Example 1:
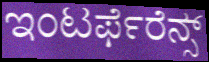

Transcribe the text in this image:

ಇಂಟರ್ಫೆರೆನ್ಸ್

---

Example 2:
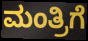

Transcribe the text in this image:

ಮಂತ್ರಿಗೆ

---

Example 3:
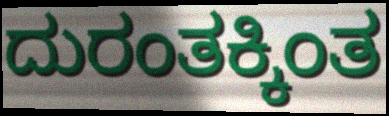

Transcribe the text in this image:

ದುರಂತಕ್ಕಿಂತ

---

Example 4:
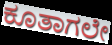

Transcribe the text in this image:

ಕೂತಾಗಲೇ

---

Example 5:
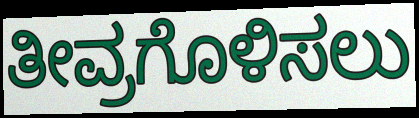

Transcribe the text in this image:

ತೀವ್ರಗೊಳಿಸಲು